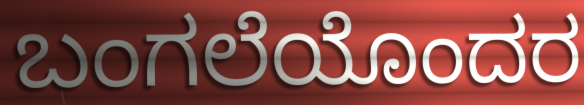
ಬಂಗಲೆಯೊಂದರ